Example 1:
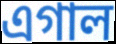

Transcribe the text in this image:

এগাল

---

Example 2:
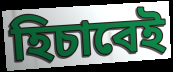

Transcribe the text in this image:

হিচাবেই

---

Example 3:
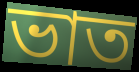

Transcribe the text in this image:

ভাত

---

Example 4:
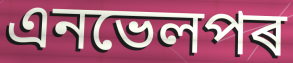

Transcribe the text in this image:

এনভেলপৰ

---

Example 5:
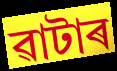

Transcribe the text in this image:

ৱাটাৰ